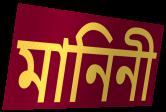
মানিনী